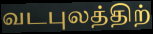
வடபுலத்திற்